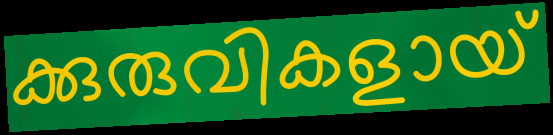
ക്കുരുവികളായ്